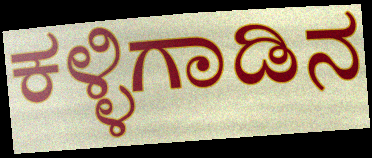
ಕಳ್ಳಿಗಾಡಿನ